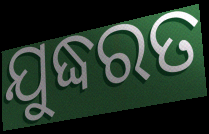
ଯୁଦ୍ଧରତ